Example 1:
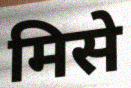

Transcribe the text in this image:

मिसे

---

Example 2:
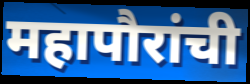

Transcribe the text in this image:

महापौरांची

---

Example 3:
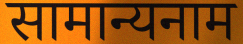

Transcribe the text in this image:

सामान्यनाम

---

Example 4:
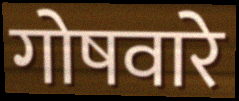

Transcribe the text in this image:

गोषवारे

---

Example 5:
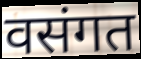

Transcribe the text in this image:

वसंगत